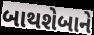
બાથશેબાને